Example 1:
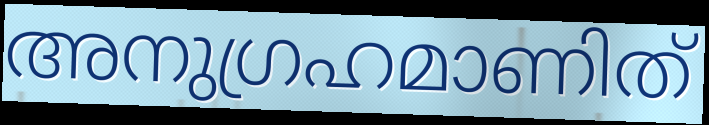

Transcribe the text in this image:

അനുഗ്രഹമാണിത്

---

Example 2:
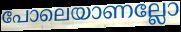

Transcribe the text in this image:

പോലെയാണല്ലോ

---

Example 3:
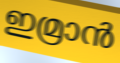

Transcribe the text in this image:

ഇമ്രാൻ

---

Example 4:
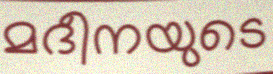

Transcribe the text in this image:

മദീനയുടെ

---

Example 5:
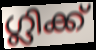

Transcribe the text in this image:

ഗ്ലിക്ക്